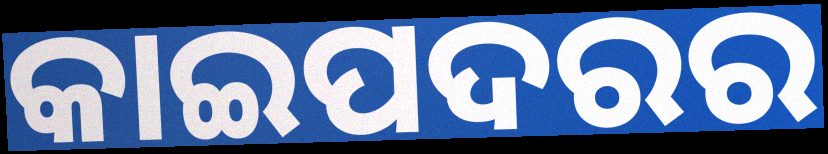
କାଇପଦରର